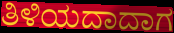
ತಿಳಿಯದಾದಾಗ